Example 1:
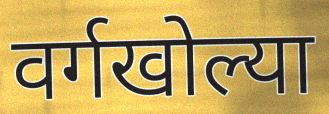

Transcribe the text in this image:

वर्गखोल्या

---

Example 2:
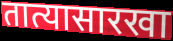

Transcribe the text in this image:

तात्यासारखा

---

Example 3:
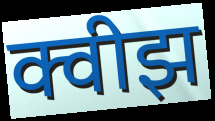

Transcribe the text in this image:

क्वीझ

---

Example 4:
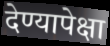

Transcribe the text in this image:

देण्यापेक्षा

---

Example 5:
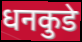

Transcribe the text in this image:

धनकुडे